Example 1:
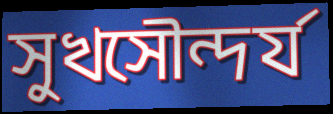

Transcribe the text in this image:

সুখসৌন্দর্য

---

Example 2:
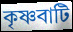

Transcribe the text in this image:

কৃষ্ণবাটি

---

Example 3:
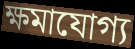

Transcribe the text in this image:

ক্ষমাযোগ্য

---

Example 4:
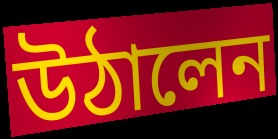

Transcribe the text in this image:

উঠালেন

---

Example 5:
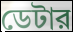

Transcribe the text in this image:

ডেটার